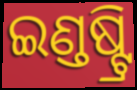
ଇଣ୍ଡଷ୍ଟ୍ରି